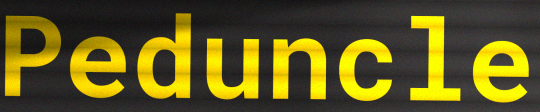
Peduncle